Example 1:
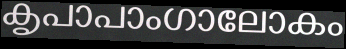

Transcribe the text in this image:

കൃപാപാംഗാലോകം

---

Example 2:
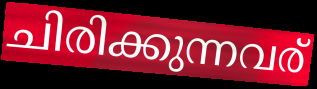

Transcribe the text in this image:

ചിരിക്കുന്നവര്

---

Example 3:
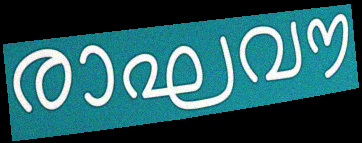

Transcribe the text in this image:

രാഘവൗ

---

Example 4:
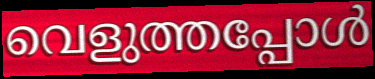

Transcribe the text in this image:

വെളുത്തപ്പോൾ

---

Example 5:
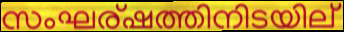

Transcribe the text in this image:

സംഘര്ഷത്തിനിടയില്